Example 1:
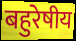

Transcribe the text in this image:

बहुरेषीय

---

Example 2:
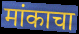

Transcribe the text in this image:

मांकाचा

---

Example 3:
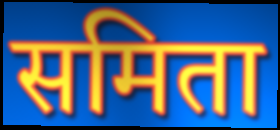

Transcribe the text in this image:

समिता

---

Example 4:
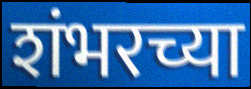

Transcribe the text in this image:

शंभरच्या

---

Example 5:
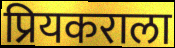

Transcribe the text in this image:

प्रियकराला